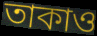
তাকাও